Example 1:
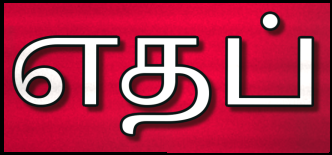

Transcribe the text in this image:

எதப்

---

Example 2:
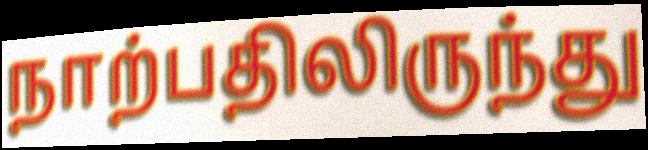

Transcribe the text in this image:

நாற்பதிலிருந்து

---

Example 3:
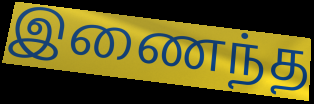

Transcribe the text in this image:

இணைந்த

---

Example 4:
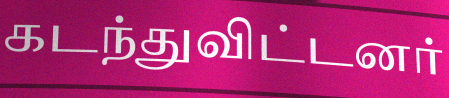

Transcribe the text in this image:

கடந்துவிட்டனர்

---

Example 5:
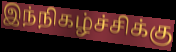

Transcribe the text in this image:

இந்நிகழ்ச்சிக்கு